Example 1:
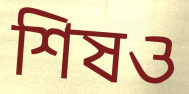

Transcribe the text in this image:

শিষও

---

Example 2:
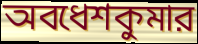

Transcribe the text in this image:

অবধেশকুমার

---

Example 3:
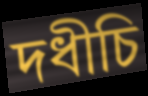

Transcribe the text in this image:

দধীচি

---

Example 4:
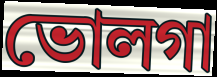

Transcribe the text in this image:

ভোলগা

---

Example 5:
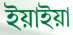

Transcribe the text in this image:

ইয়াইয়া